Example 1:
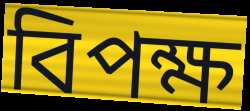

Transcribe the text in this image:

বিপক্ষ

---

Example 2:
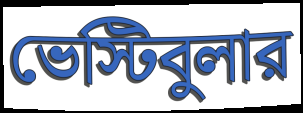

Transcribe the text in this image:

ভেস্টিবুলার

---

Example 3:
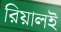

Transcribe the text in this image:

রিয়ালই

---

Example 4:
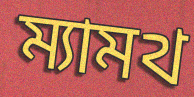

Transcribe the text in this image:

ম্যামথ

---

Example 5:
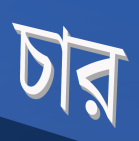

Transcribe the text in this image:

চার